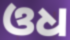
ଓଧ